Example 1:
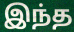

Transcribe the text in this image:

இந்த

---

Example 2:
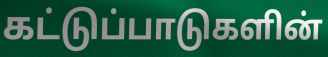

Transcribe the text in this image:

கட்டுப்பாடுகளின்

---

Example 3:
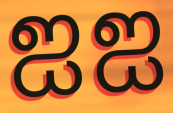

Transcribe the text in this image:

ஐஐ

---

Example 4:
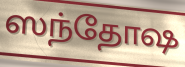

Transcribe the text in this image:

ஸந்தோஷ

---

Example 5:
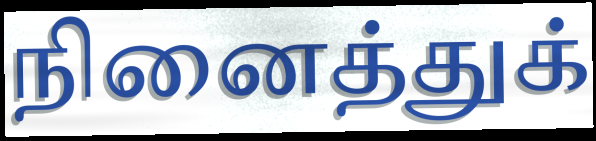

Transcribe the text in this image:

நினைத்துக்